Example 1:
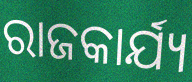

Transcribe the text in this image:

ରାଜକାର୍ଯ୍ୟ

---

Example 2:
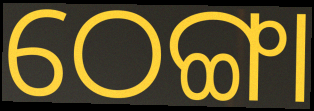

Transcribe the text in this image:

ଠେଙ୍ଗା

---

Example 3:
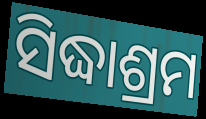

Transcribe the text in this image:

ସିଦ୍ଧାଶ୍ରମ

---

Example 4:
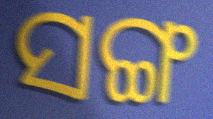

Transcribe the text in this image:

ସଙ୍ଗ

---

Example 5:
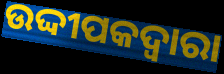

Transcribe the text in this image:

ଉଦ୍ଦୀପକଦ୍ବାରା